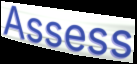
Assess